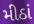
મીઠાં